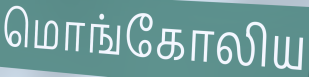
மொங்கோலிய